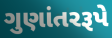
ગુણાંતરરૂપે